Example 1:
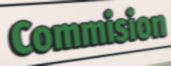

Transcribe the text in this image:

Commision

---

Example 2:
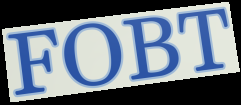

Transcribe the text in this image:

FOBT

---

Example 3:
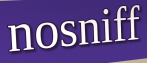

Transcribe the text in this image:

nosniff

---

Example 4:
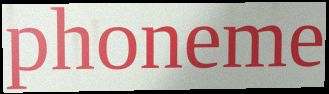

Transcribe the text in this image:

phoneme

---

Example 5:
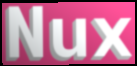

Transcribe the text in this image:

Nux